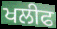
ਖਲੀਫ